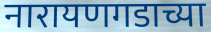
नारायणगडाच्या